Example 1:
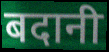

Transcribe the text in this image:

बदानी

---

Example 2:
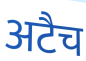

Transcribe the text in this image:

अटैच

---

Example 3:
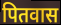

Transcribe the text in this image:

पितवास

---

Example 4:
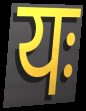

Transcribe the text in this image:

यः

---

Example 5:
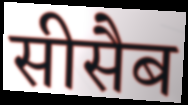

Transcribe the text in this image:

सीसैब